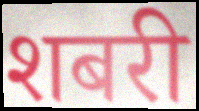
शबरी